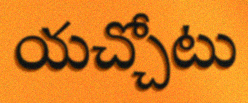
యచ్చోటు